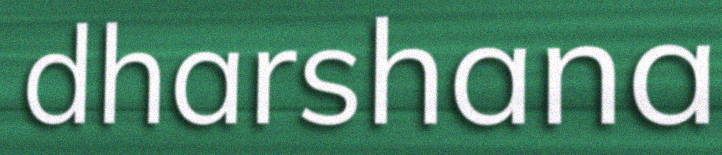
dharshana